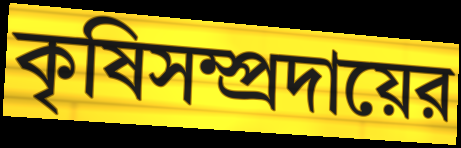
কৃষিসম্প্রদায়ের